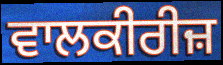
ਵਾਲਕੀਰੀਜ਼